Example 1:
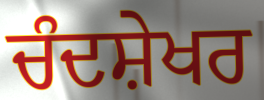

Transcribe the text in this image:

ਚੰਦਸ਼ੇਖਰ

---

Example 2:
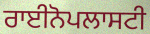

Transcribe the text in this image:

ਰਾਈਨੋਪਲਾਸਟੀ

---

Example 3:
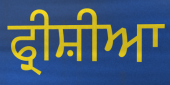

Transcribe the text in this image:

ਫ੍ਰੀਸ਼ੀਆ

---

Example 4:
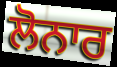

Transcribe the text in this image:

ਲੋਨਾਰ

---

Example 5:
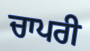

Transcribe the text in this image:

ਚਾਪਰੀ